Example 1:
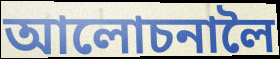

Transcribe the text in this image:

আলোচনালৈ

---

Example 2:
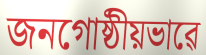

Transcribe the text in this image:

জনগোষ্ঠীয়ভাৱে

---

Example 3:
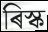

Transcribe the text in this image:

ৰিস্ক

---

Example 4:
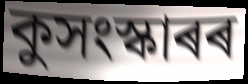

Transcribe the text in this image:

কুসংস্কাৰৰ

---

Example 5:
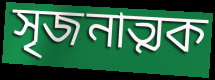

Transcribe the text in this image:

সৃজনাত্মক